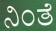
ನಿಂತೆ